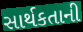
સાર્થકતાની